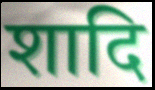
शादि